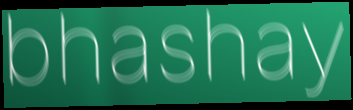
bhashay